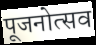
पूजनोत्सव